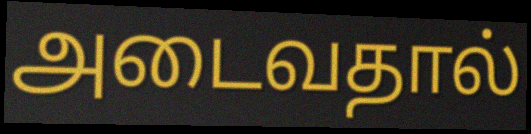
அடைவதால்